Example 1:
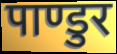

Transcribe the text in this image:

पाण्डुर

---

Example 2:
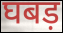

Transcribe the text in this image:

घबड़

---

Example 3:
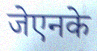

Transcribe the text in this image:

जेएनके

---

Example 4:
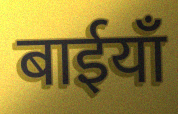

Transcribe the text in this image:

बाईयाँ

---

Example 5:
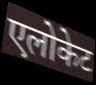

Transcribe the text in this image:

एलोकेट